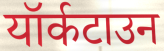
यॉर्कटाउन